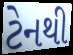
ટેનથી